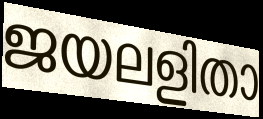
ജയലളിതാ